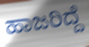
ಹಾಜರಿದ್ದೆ